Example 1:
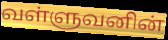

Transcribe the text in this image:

வள்ளுவனின்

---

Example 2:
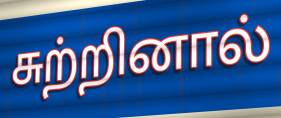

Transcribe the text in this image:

சுற்றினால்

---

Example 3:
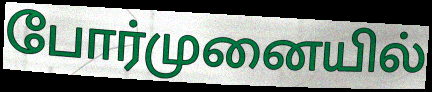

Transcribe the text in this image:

போர்முனையில்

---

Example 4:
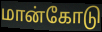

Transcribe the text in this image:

மான்கோடு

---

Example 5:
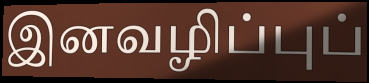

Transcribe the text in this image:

இனவழிப்புப்